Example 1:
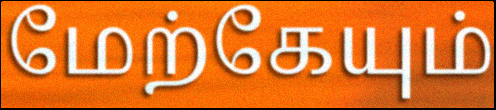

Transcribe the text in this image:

மேற்கேயும்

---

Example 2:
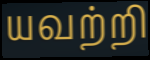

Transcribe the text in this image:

யவற்றி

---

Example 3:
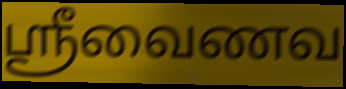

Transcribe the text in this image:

ஸ்ரீவைணவ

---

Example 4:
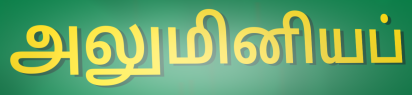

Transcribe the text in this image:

அலுமினியப்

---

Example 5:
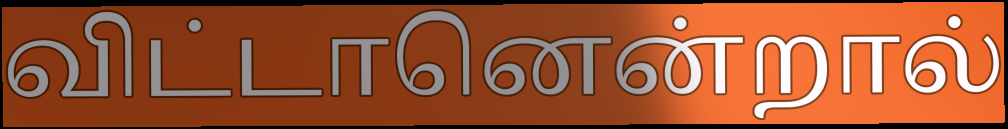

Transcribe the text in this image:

விட்டானென்றால்